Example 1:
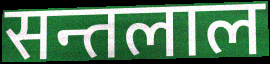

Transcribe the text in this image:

सन्तलाल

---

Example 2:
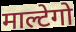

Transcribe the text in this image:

माल्टेगो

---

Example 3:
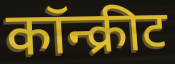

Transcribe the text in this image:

कॉन्क्रीट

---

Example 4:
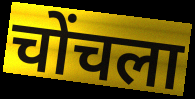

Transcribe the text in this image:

चोंचला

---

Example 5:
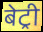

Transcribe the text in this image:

बेट्री